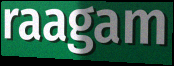
raagam